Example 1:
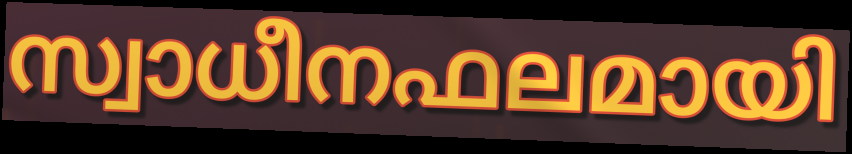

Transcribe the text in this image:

സ്വാധീനഫലമായി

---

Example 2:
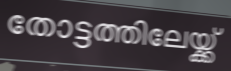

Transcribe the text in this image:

തോട്ടത്തിലേയ്ക്ക്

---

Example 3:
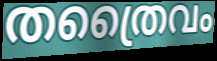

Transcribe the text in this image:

തത്രൈവം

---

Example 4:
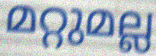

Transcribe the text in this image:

മറ്റുമല്ല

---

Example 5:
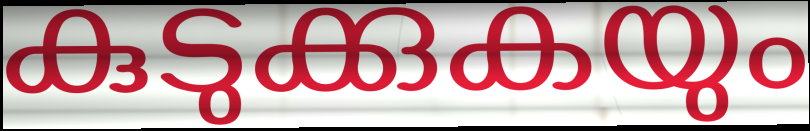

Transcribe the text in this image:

കുടുക്കുകയും